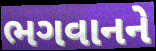
ભગવાનને